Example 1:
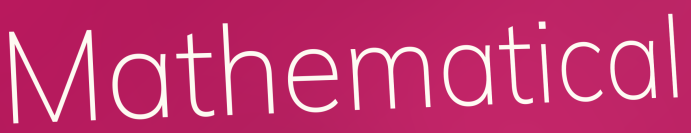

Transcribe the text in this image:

Mathematical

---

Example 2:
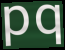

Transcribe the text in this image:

pq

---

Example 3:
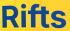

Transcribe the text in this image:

Rifts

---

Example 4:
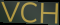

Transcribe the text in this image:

VCH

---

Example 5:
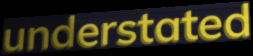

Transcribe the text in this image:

understated